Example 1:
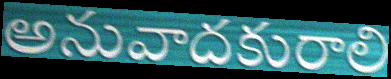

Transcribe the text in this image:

అనువాదకురాలి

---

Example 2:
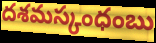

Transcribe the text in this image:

దశమస్కంధంబు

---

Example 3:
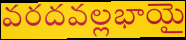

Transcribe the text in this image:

వరదవల్లభాయై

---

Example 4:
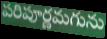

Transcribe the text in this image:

పరిపూర్ణమగును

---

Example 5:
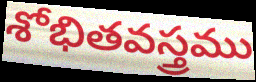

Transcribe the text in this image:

శోభితవస్త్రము